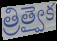
త్రిత్వైక